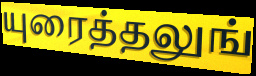
யுரைத்தலுங்